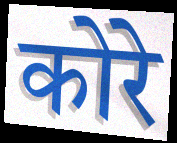
कोरे